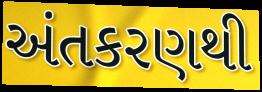
અંતકરણથી